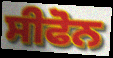
ਸੀਫੋਨ